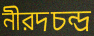
নীরদচন্দ্র